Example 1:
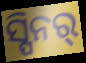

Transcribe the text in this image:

ସ୍ପିନର୍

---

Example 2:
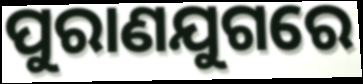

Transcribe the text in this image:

ପୁରାଣଯୁଗରେ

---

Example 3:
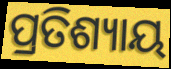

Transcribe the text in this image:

ପ୍ରତିଶ୍ୟାୟ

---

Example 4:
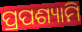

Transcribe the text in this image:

ପ୍ରପଶ୍ୟାମି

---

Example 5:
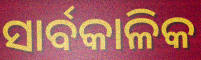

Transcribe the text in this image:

ସାର୍ବକାଳିକ